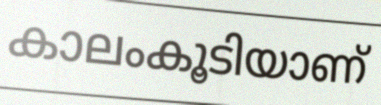
കാലംകൂടിയാണ്